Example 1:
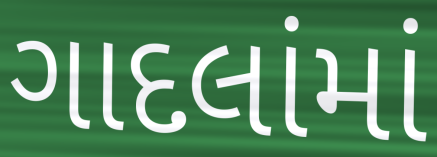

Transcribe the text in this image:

ગાદલાંમાં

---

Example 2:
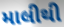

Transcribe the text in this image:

માલીથી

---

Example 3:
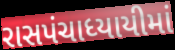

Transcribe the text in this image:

રાસપંચાધ્યાયીમાં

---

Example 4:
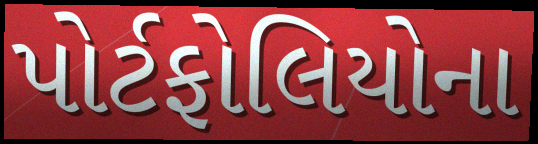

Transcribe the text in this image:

પોર્ટફોલિયોના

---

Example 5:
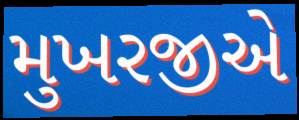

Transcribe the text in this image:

મુખરજીએ